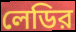
লেডির